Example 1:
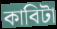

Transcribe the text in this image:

কাবিটা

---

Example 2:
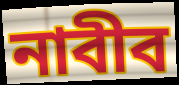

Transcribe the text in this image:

নাবীব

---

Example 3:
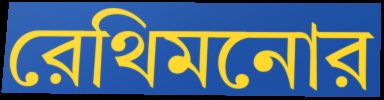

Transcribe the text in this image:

রেথিমনোর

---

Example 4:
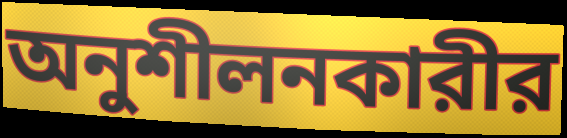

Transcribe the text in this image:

অনুশীলনকারীর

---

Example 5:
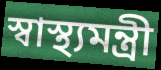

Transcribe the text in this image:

স্বাস্থ্যমন্ত্রী